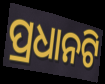
ପ୍ରଧାନଟି